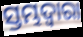
ସ୍ତମ୍ଭଦ୍ୱାରା